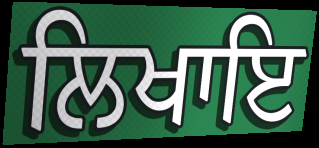
ਲਿਖਾਇ